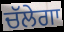
ਚੱਲੇਗਾ